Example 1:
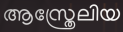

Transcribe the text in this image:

ആസ്ത്രേലിയ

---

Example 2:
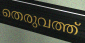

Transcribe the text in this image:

തെരുവത്ത്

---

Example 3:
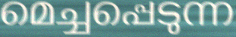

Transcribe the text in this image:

മെച്ചപ്പെടുന്ന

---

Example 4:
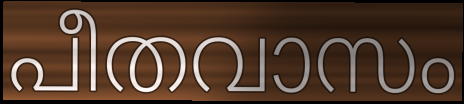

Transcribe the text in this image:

പീതവാസം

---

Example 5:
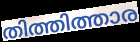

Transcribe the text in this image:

തിത്തിത്താര